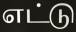
எட்டு